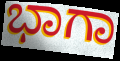
ಭಾಗಾ